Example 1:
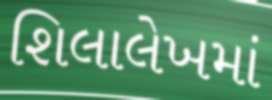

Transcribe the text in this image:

શિલાલેખમાં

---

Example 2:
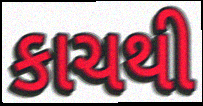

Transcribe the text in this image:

કાચથી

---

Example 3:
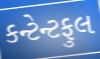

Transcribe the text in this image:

કન્ટેન્ટફુલ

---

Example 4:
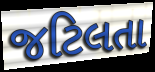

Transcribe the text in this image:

જટિલતા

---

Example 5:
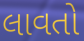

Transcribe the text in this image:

લાવતો